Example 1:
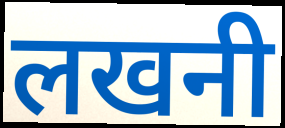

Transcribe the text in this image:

लखनी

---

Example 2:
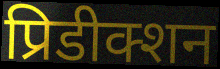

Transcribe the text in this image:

प्रिडीक्शन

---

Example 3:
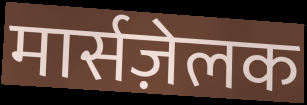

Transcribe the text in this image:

मार्सज़ेलक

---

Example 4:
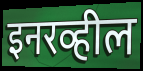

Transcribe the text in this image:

इनरव्हील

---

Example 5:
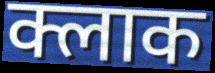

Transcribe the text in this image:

क्लाक